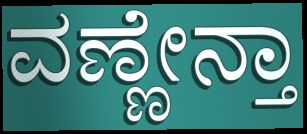
ವಣ್ಣೇನ್ತಾ